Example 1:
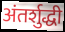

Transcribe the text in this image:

अंतर्शुद्धी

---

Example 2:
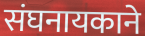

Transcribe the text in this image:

संघनायकाने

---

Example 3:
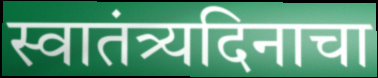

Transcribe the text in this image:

स्वातंत्र्यदिनाचा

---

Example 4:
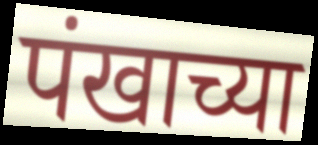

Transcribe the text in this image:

पंखाच्या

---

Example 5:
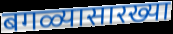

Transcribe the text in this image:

बगळ्यासारख्या